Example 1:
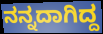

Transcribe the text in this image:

ನನ್ನದಾಗಿದ್ದ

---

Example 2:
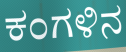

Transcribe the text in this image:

ಕಂಗಳಿನ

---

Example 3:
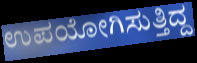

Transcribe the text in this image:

ಉಪಯೋಗಿಸುತ್ತಿದ್ದ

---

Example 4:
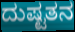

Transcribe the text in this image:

ದುಷ್ಟತನ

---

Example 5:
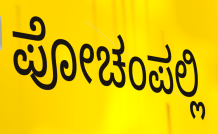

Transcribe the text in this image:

ಪೋಚಂಪಲ್ಲಿ